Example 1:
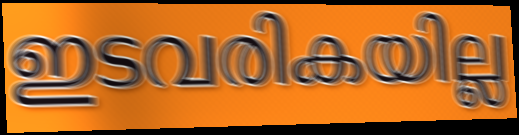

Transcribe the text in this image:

ഇടവരികയില്ല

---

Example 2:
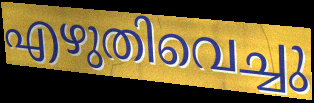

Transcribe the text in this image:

എഴുതിവെച്ചു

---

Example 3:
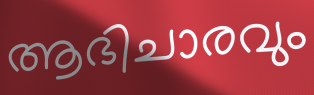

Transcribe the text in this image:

ആഭിചാരവും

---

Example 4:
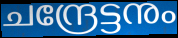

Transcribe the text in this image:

ചന്ദ്രേട്ടനും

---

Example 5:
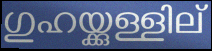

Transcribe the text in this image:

ഗുഹയ്ക്കുള്ളില്